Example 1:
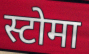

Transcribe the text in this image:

स्टोमा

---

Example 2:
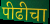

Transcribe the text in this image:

पीढीचा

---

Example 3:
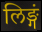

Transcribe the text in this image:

लिङ्गं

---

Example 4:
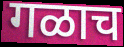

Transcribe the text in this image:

गळाच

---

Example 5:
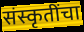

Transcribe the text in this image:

संस्कृतींचा